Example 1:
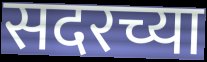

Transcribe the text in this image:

सदरच्या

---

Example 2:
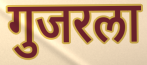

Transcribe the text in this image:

गुजरला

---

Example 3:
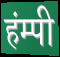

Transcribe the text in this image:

हंम्पी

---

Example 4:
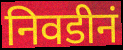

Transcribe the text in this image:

निवडीनं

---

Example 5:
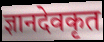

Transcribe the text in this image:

ज्ञानदेवकृत